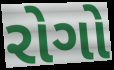
રોગો